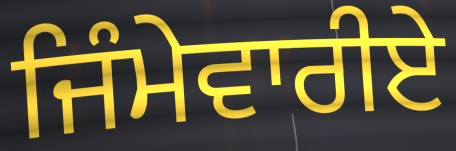
ਜਿੰਮੇਵਾਰੀਏ